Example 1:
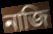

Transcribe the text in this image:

নাজি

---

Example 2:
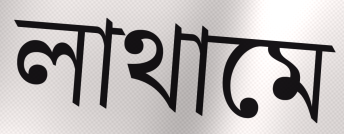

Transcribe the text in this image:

লাথামে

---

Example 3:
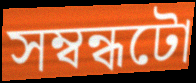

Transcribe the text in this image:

সম্বন্ধটো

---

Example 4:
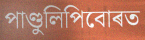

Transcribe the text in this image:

পাণ্ডুলিপিবোৰত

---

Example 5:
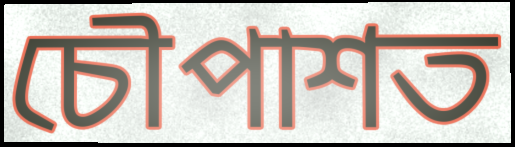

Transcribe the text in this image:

চৌপাশত